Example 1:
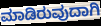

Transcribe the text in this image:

ಮಾಡಿರುವುದಾಗಿ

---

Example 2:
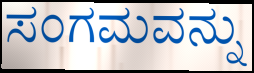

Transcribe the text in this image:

ಸಂಗಮವನ್ನು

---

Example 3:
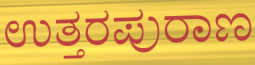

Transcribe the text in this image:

ಉತ್ತರಪುರಾಣ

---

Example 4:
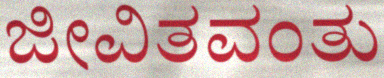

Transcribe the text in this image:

ಜೀವಿತವಂತು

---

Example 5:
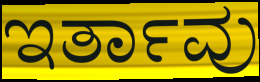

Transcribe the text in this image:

ಇರ್ತಾವು